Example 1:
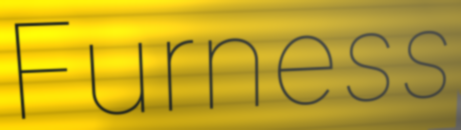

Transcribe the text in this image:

Furness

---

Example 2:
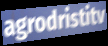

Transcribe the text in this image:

agrodristitv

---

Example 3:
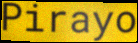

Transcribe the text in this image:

Pirayo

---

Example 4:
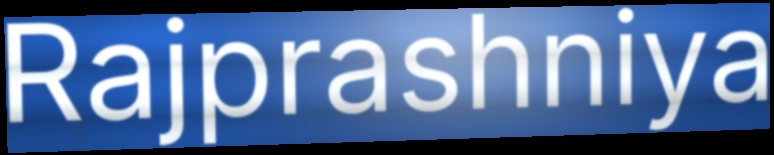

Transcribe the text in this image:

Rajprashniya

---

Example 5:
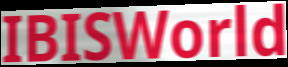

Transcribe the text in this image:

IBISWorld